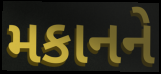
મકાનને